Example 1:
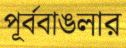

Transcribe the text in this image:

পূর্ববাঙলার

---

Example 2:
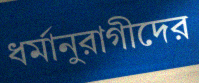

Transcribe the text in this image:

ধর্মানুরাগীদের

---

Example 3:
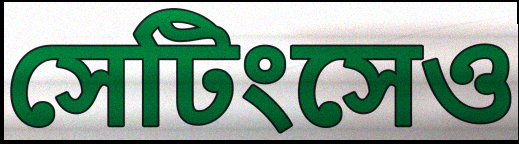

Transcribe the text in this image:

সেটিংসেও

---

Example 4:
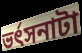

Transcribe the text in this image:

ভর্ৎসনাটা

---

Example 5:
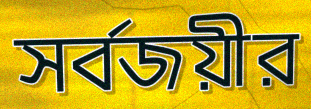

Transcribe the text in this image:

সর্বজয়ীর